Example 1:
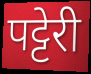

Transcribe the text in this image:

पट्टेरी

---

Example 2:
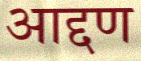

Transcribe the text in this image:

आद्दण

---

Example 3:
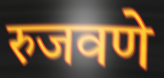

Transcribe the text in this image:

रुजवणे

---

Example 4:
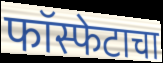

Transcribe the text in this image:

फॉस्फेटाचा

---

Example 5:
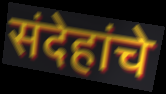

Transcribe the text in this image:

संदेहांचे